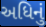
અધિનું